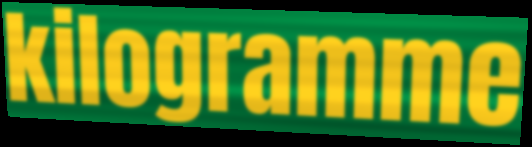
kilogramme